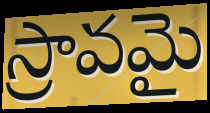
స్రావమై